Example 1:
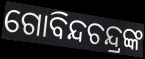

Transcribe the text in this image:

ଗୋବିନ୍ଦଚନ୍ଦ୍ରଙ୍କ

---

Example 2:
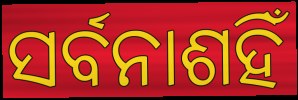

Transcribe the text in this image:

ସର୍ବନାଶହିଁ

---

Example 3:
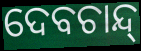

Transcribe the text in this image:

ଦେବଚାନ୍ଦ୍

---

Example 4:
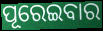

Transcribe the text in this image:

ପୂରେଇବାର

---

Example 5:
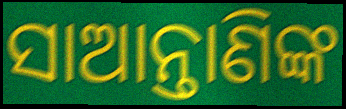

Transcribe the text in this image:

ସାଆନ୍ତାଣିଙ୍କ